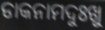
ଡାକନାମଦୁଃଖୁ